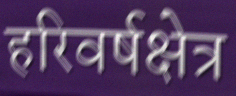
हरिवर्षक्षेत्र